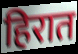
हिरात